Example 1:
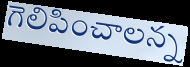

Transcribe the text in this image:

గెలిపించాలన్న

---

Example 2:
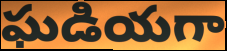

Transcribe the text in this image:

ఘడియగా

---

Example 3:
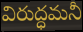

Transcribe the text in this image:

విరుద్ధమనీ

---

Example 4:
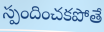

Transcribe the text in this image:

స్పందించకపోతే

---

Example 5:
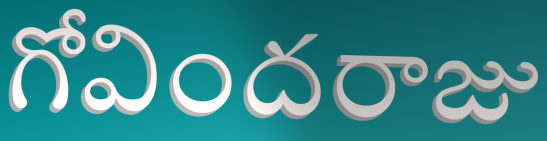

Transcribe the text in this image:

గోవిందరాజు